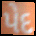
પેદ